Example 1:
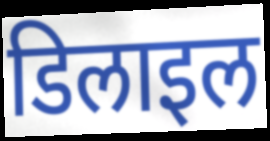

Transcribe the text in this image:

डिलाइल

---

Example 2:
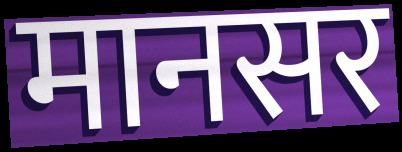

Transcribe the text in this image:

मानसर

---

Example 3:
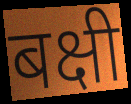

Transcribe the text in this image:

बक्षी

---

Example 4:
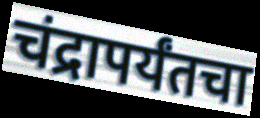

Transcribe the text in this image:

चंद्रापर्यंतचा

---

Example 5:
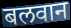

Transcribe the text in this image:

बलवान